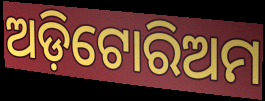
ଅଡ଼ିଟୋରିଅମ